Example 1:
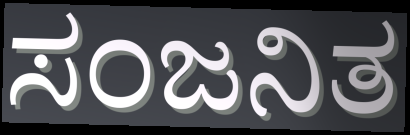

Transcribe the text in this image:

ಸಂಜನಿತ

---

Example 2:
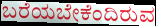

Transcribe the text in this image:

ಬರೆಯಬೇಕೆಂದಿರುವ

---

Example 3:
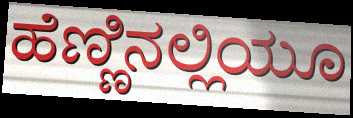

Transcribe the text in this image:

ಹೆಣ್ಣಿನಲ್ಲಿಯೂ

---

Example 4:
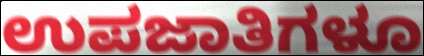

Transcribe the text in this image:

ಉಪಜಾತಿಗಳೂ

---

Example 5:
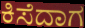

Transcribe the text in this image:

ಕಿಸೆದಾಗ